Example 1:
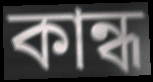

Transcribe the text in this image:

কান্ধ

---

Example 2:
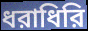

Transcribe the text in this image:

ধরাধিরি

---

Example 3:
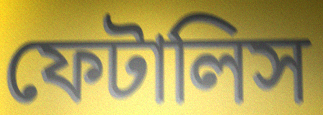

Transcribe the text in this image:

ফেটালিস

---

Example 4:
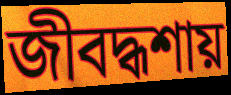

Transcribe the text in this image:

জীবদ্ধশায়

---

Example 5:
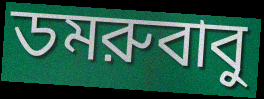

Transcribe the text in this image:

ডমরুবাবু